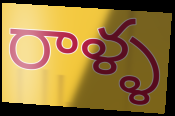
రాళ్ళ